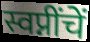
स्वप्नींचें